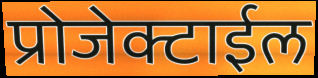
प्रोजेक्टाईल